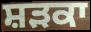
ਸ਼ੜਕਾ